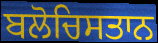
ਬਲੋਚਿਸਤਾਨ